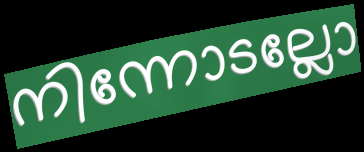
നിന്നോടല്ലോ